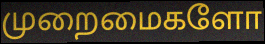
முறைமைகளோ